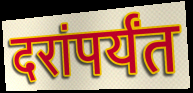
दरांपर्यंत